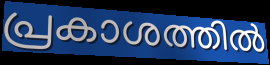
പ്രകാശത്തിൽ